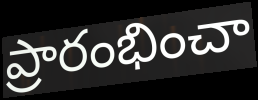
ప్రారంభించా